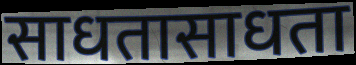
साधतासाधता